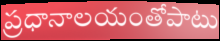
ప్రధానాలయంతోపాటు